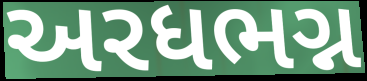
અરધભગ્ન